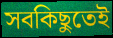
সবকিছুতেই